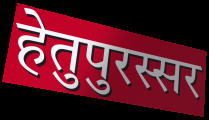
हेतुपुरस्सर